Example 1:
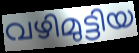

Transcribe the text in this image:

വഴിമുട്ടിയ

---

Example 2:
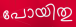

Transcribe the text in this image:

പോയിതു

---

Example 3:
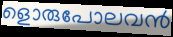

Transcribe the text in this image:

ളൊരുപോലവൻ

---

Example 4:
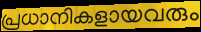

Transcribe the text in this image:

പ്രധാനികളായവരും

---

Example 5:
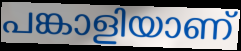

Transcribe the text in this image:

പങ്കാളിയാണ്